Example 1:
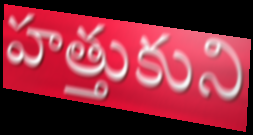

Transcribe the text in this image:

హత్తుకుని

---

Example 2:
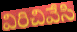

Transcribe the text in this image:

విరిచివేసి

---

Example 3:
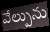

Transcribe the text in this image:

వేల్పును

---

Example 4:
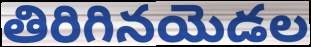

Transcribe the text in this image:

తిరిగినయెడల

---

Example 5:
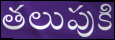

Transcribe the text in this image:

తలుపుకి